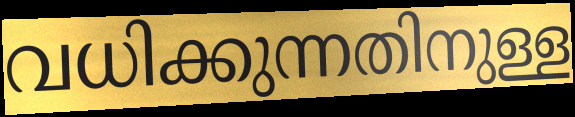
വധിക്കുന്നതിനുള്ള